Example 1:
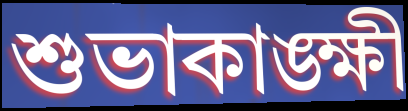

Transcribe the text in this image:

শুভাকাঙ্ক্ষী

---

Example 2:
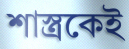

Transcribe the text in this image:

শাস্ত্রকেই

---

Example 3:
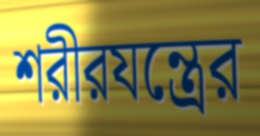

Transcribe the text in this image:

শরীরযন্ত্রের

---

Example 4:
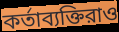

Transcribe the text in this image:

কর্তাব্যক্তিরাও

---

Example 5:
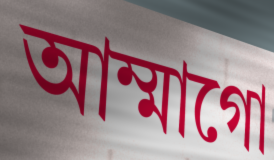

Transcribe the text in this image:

আম্মাগো